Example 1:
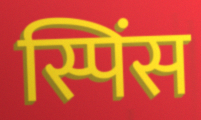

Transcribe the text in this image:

स्पिंस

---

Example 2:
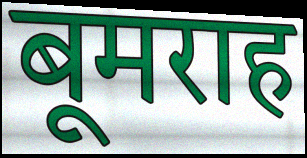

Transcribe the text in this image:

बूमराह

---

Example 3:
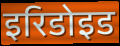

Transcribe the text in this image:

इरिडोइड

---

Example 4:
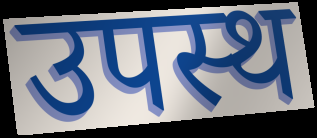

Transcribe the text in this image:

उपस्थ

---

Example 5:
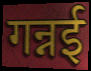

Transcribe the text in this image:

गन्नई